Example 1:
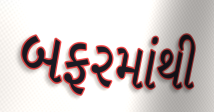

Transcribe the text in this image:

બફરમાંથી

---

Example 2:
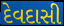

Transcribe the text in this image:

દેવદાસી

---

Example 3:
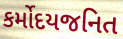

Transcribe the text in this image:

કર્મોદયજનિત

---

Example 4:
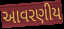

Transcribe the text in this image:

આવરણીય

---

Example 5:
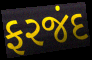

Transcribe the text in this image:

ફરજંદ